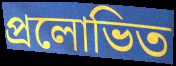
প্ৰলোভিত